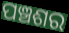
ପଞ୍ଚଶର